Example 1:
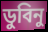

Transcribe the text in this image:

ডুবিনু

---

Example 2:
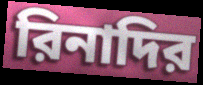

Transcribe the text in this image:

রিনাদির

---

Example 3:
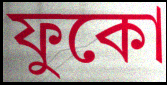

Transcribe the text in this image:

ফুকো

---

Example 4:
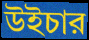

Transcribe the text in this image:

উইচার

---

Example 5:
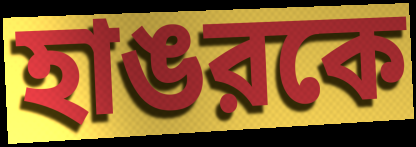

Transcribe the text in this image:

হাঙরকে